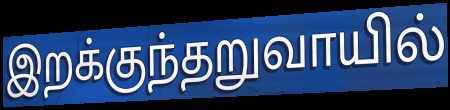
இறக்குந்தறுவாயில்